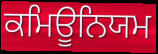
ਕਮਿਊਨਿਯਮ